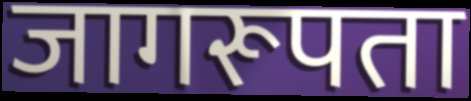
जागरूपता